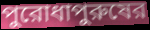
পুরোধাপুরুষের